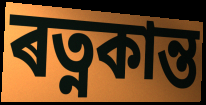
ৰত্নকান্ত